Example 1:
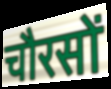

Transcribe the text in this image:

चौरसों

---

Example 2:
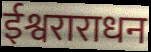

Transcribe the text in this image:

ईश्वराराधन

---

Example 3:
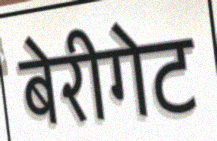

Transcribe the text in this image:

बेरीगेट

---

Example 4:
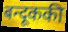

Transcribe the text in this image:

बन्दूककी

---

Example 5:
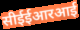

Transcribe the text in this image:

सीईईआरआई